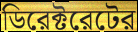
ডিরেক্টরেটের